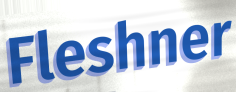
Fleshner